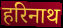
हरिनाथ